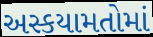
અસ્કયામતોમાં